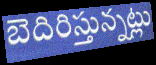
బెదిరిస్తున్నట్లు